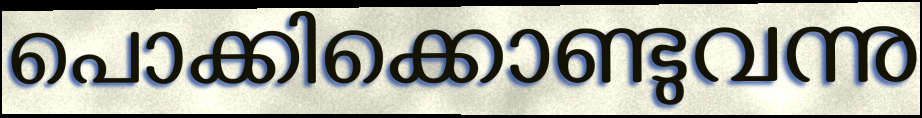
പൊക്കിക്കൊണ്ടുവന്നു